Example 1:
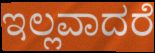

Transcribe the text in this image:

ಇಲ್ಲವಾದರೆ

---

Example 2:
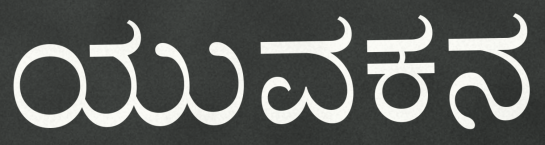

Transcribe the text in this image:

ಯುವಕನ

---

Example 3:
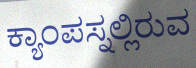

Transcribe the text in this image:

ಕ್ಯಾಂಪಸ್ನಲ್ಲಿರುವ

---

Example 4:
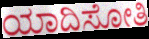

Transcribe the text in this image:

ಯಾದಿಸೋತಿ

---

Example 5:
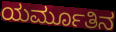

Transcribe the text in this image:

ಯರ್ಮೂತಿನ